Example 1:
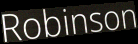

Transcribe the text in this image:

Robinson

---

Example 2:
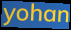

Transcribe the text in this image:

yohan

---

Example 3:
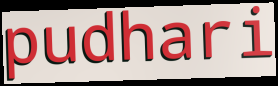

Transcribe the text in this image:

pudhari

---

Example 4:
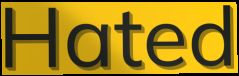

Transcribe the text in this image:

Hated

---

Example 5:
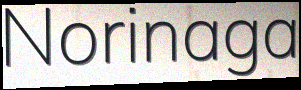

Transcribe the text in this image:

Norinaga